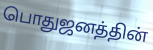
பொதுஜனத்தின்